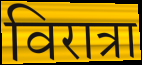
विरात्रा